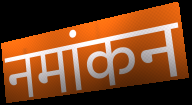
नमांकन